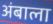
अंबाला